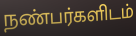
நண்பர்களிடம்